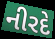
નીરદે